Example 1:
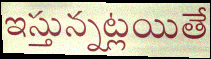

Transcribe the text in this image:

ఇస్తున్నట్లయితే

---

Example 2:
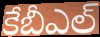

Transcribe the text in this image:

కేబీఎల్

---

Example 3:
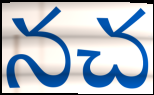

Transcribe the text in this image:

నచ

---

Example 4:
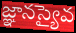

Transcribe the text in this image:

జ్ఞానస్యైవ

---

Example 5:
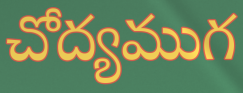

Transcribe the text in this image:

చోద్యముగ